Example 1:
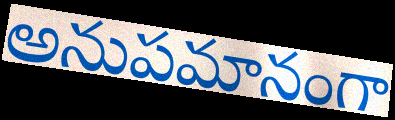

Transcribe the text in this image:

అనుపమానంగా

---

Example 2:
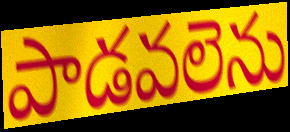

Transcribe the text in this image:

పాడవలెను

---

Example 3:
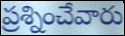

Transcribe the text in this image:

ప్రశ్నించేవారు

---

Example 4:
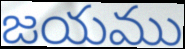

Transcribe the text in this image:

జయము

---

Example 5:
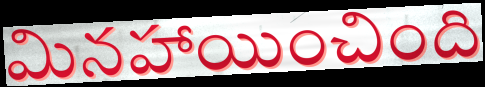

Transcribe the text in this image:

మినహాయించింది